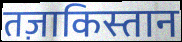
तज़ाकिस्तान